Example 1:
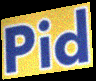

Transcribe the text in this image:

Pid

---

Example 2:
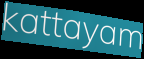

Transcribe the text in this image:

kattayam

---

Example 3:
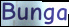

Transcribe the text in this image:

Bunga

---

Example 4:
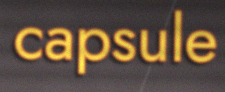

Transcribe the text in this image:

capsule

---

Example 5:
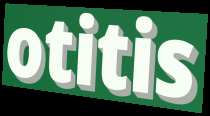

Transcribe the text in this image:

otitis